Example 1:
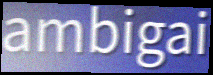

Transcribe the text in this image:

ambigai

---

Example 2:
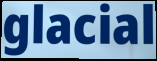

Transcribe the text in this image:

glacial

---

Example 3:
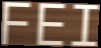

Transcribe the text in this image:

FEI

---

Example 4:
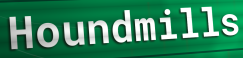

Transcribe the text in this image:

Houndmills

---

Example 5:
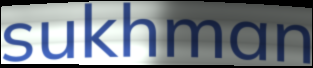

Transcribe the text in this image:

sukhman